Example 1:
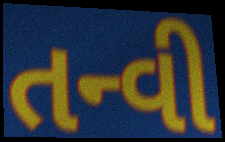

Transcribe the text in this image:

તન્વી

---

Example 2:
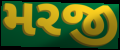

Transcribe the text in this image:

મરજી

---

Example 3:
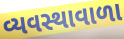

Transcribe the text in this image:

વ્યવસ્થાવાળા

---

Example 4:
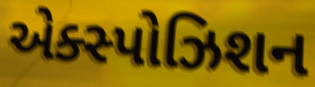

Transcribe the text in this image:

એક્સ્પોઝિશન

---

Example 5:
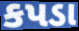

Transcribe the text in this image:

કપડા